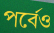
পর্বেও